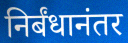
निर्बंधानंतर